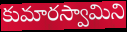
కుమారస్వామిని